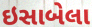
ઇસાબેલા